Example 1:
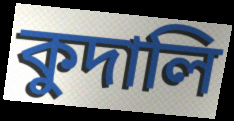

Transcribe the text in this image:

কুদালি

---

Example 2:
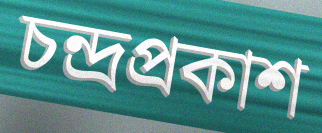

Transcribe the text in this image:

চন্দ্ৰপ্ৰকাশ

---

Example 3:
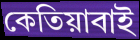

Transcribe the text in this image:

কেতিয়াবাই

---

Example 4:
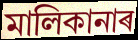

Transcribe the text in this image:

মালিকানাৰ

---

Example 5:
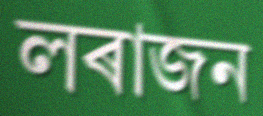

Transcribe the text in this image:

লৰাজন